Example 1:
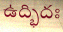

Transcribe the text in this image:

ఉద్భిదః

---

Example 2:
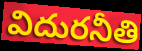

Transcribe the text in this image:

విదురనీతి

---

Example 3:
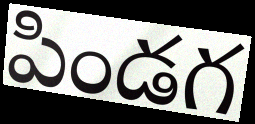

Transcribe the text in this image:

పిండగ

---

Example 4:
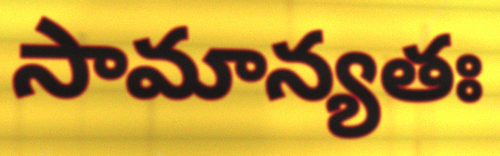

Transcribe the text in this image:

సామాన్యతః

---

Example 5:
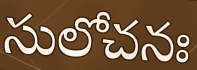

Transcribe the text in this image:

సులోచనః